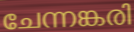
ചേന്നങ്കരി